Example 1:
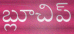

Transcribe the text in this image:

బ్లూచిప్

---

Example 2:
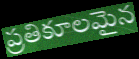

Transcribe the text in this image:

ప్రతికూలమైన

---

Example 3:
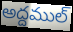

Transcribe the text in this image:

అద్దముల్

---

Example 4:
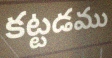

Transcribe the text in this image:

కట్టడము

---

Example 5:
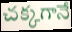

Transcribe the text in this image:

చక్కగానే